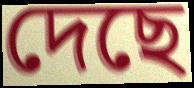
দেছে